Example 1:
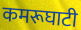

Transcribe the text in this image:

कमरूघाटी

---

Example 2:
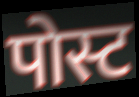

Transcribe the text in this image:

पोस्‍ट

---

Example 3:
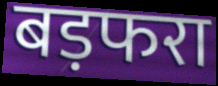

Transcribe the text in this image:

बड़फरा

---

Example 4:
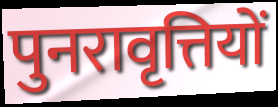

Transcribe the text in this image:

पुनरावृत्तियों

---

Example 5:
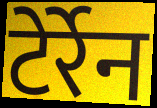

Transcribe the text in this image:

टेर्रेन